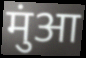
मुंआ